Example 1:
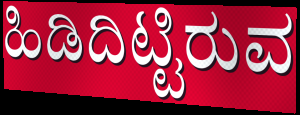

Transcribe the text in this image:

ಹಿಡಿದಿಟ್ಟಿರುವ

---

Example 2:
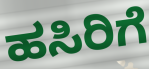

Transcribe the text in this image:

ಹಸಿರಿಗೆ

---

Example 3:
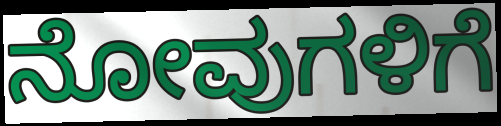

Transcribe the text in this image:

ನೋವುಗಳಿಗೆ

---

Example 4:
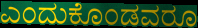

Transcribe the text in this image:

ಎಂದುಕೊಂಡವರೂ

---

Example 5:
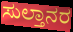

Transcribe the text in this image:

ಸುಲ್ತಾನರ